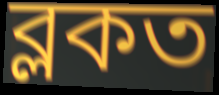
ব্লকত